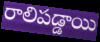
రాలిపడ్డాయి